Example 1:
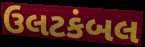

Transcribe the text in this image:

ઉલટકંબલ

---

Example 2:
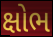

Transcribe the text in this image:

ક્ષોભ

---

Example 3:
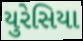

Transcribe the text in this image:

યુરેસિયા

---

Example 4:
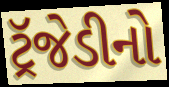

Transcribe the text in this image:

ટ્રૅજેડીનો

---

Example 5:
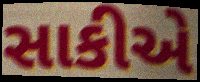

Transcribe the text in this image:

સાકીએ